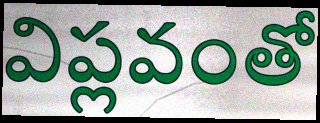
విప్లవంతో